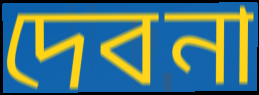
দেবনা